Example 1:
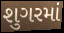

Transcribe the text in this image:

શુગરમાં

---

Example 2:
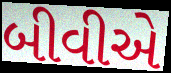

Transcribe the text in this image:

બીવીએ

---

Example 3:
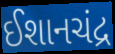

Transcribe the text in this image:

ઈશાનચંદ્ર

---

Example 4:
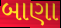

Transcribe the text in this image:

બાણા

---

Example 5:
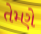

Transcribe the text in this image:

તેમ્ણે